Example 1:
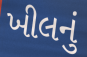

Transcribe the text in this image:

ખીલનું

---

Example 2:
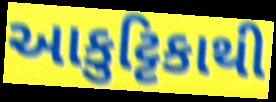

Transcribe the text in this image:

આકુટ્ટિકાથી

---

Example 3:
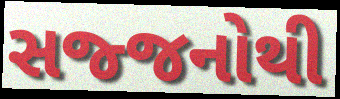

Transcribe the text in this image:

સજ્જનોથી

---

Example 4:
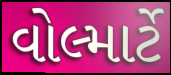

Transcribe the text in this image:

વોલ્માર્ટે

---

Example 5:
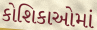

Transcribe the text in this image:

કોશિકાઓમાં